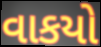
વાકયો